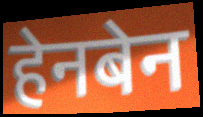
हेनबेन